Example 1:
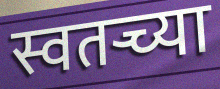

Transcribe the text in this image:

स्वतर्‍च्या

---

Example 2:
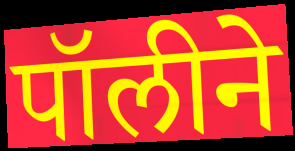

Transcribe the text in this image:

पॉलीने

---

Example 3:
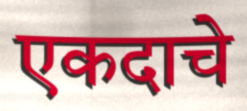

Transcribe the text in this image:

एकदाचे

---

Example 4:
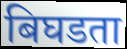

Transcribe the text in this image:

बिघडता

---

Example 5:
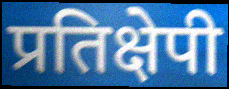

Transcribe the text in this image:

प्रतिक्षेपी